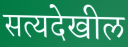
सत्यदेखील